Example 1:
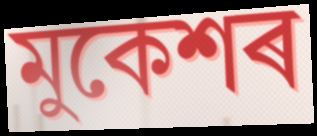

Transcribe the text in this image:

মুকেশৰ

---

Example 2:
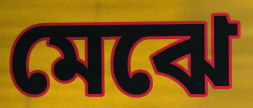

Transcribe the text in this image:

মেঝে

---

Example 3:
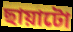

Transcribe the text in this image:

ছায়াটো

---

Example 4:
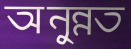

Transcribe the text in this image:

অনুন্নত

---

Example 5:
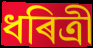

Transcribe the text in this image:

ধৰিত্ৰী